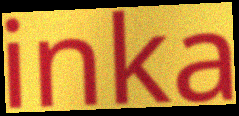
inka